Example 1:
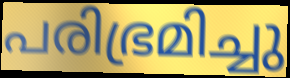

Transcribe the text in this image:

പരിഭ്രമിച്ചു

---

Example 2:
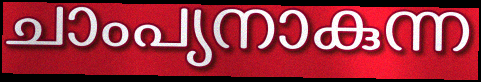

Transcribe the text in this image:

ചാംപ്യനാകുന്ന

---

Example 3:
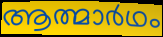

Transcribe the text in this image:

ആത്മാർഥം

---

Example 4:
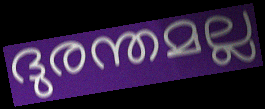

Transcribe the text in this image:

ദുരന്തമല്ല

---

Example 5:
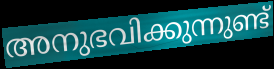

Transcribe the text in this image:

അനുഭവിക്കുന്നുണ്ട്